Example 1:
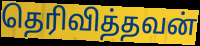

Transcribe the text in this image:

தெரிவித்தவன்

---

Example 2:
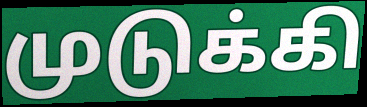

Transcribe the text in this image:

முடுக்கி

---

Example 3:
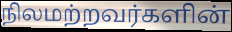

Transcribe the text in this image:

நிலமற்றவர்களின்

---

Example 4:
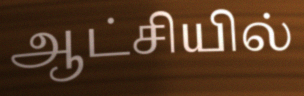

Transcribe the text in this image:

ஆட்சியில்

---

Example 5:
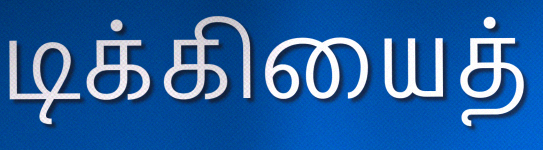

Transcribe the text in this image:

டிக்கியைத்